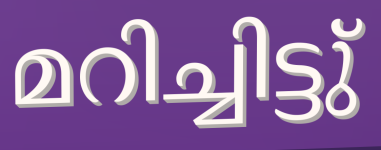
മറിച്ചിട്ടു്